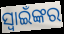
ସ୍ଵାଇଁଙ୍କର